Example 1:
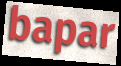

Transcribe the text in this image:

bapar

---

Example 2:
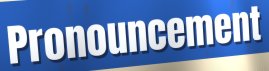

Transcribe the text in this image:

Pronouncement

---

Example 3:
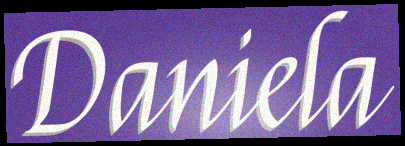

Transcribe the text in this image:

Daniela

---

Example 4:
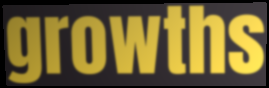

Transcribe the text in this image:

growths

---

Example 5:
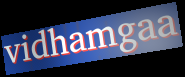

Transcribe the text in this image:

vidhamgaa